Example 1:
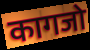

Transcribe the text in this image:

कागजो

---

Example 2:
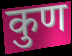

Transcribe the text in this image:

कुण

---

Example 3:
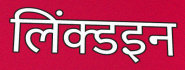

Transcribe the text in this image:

लिंक्डइन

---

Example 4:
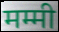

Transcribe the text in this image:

मम्मी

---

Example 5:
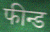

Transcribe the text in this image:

फीन्ड